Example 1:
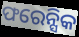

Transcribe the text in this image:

ଫରେନ୍ସିକ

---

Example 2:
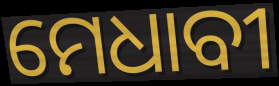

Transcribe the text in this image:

ମେଧାବୀ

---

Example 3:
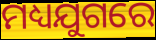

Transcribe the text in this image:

ମଧ୍ୟଯୁଗରେ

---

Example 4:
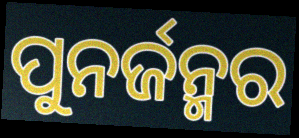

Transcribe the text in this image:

ପୁନର୍ଜନ୍ମର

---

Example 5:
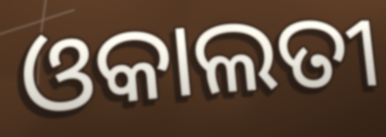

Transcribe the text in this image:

ଓକାଲତୀ